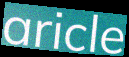
aricle